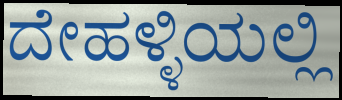
ದೇಹಳ್ಳಿಯಲ್ಲಿ